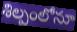
శిల్పంలోనూ